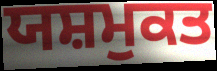
ਯਸ਼ਮੁਕਤ